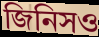
জিনিসও